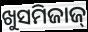
ଖୁସମିଜାଜ୍